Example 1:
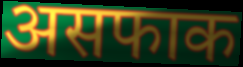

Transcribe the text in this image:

असफाक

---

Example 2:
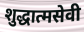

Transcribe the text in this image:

शुद्धात्मसेवी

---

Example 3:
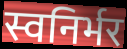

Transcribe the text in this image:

स्वनिर्भर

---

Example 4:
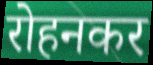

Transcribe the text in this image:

रोहनकर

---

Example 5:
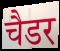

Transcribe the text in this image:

चैडर